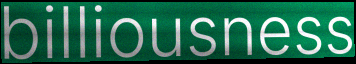
billiousness